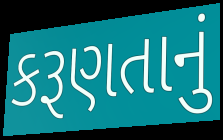
કરૂણતાનું